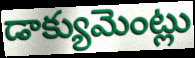
డాక్యుమెంట్లు